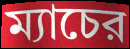
ম্যাচের